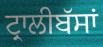
ਟ੍ਰਾਲੀਬੱਸਾਂ